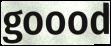
goood